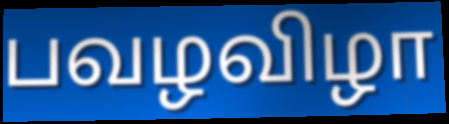
பவழவிழா